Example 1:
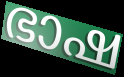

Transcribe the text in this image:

ഭാഷ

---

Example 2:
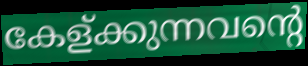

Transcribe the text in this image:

കേള്ക്കുന്നവന്റെ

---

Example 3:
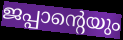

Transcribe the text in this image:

ജപ്പാന്റെയും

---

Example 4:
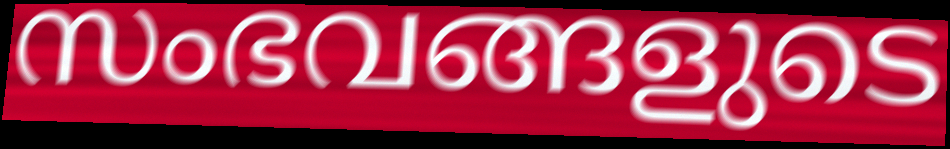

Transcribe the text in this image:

സംഭവങ്ങളുടെ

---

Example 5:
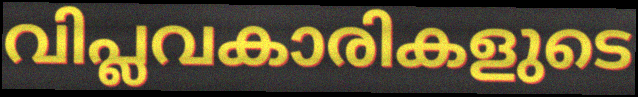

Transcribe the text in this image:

വിപ്ലവകാരികളുടെ